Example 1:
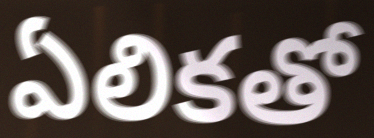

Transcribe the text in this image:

ఏలికతో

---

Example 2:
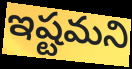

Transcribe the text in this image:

ఇష్టమని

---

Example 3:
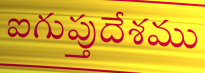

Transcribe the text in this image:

ఐగుప్తుదేశము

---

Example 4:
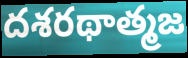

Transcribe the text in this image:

దశరథాత్మజ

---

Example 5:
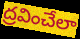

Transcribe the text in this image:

ద్రవించేలా